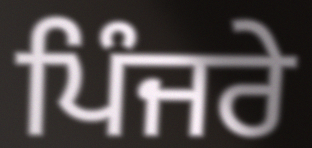
ਪਿੰਜਰੇ